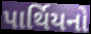
પાર્થિયનો